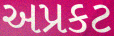
અપ્રકટ